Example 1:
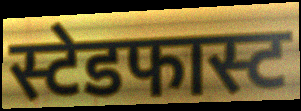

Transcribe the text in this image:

स्टेडफास्ट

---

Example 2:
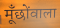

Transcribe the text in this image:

मूँछोंवाला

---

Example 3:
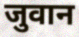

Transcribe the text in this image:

जुवान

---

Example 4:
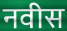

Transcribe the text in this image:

नवीस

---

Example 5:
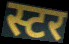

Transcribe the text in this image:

स्टर